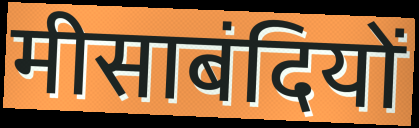
मीसाबंदियों